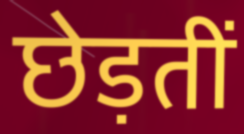
छेड़तीं